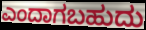
ಎಂದಾಗಬಹುದು